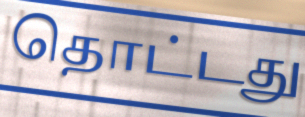
தொட்டது